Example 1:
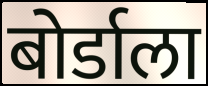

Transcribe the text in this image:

बोर्डाला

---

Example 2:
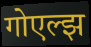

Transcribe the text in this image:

गोएल्झ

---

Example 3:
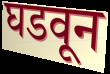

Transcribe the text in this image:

घडवून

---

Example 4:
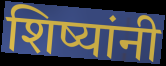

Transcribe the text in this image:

शिष्यांनी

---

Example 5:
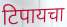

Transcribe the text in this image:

टिपायचा